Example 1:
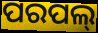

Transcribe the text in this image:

ପରପଲ୍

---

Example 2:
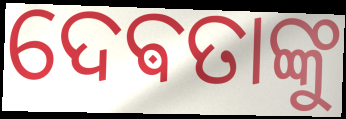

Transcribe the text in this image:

ଦେଵତାଙ୍କୁ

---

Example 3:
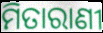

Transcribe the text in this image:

ମିତାରାଣୀ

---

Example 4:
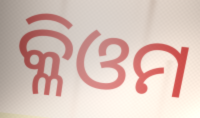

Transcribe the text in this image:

କ୍ଳିଓମ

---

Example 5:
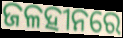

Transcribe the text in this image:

ଜଳହୀନରେ